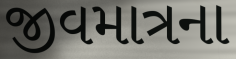
જીવમાત્રના